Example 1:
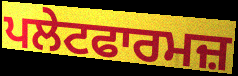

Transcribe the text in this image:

ਪਲੇਟਫਾਰਮਜ਼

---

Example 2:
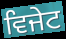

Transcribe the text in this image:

ਵਿਜੇਟ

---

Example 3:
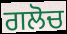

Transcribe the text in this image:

ਗਲੋਚ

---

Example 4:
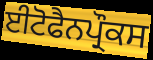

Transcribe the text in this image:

ਈਟੋਫੈਨਪ੍ਰੌਕਸ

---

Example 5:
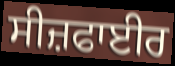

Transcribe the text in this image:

ਸੀਜ਼ਫਾਈਰ